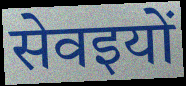
सेवइयों